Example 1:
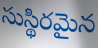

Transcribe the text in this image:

సుస్థిరమైన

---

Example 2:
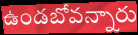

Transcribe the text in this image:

ఉండబోవన్నారు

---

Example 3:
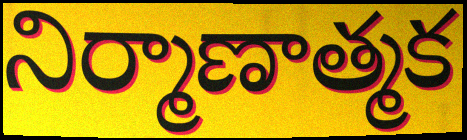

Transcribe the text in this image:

నిర్మాణాత్మక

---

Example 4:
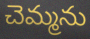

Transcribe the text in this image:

చెమ్మను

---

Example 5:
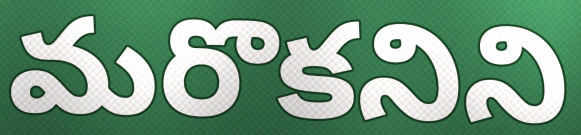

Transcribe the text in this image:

మరొకనిని